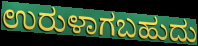
ಉರುಳಾಗಬಹುದು